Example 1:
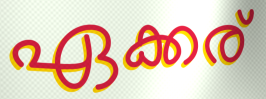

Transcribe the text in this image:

ഏക്കര്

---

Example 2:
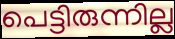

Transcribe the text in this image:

പെട്ടിരുന്നില്ല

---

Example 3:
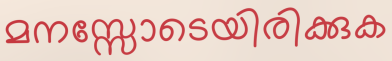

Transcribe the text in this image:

മനസ്സോടെയിരിക്കുക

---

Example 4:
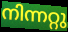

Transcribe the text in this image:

നിന്നറ്റു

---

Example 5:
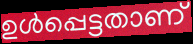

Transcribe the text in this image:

ഉൾപ്പെട്ടതാണ്